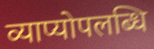
व्याप्योपलब्धि